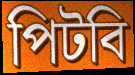
পিটবি